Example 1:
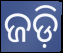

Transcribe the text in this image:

ଜଡ଼ି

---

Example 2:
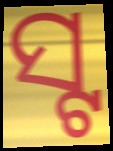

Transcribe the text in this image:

ସ୍ଟ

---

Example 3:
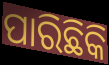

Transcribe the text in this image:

ପାରିଛିକି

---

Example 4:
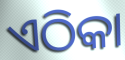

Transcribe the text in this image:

ଏଠିକା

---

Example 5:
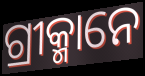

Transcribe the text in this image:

ଗ୍ରୀକ୍ମାନେ